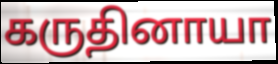
கருதினாயா